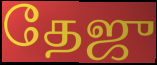
தேஜு